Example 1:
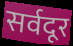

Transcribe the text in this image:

सर्वदूर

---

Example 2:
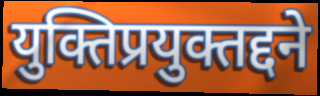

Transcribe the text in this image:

युक्तिप्रयुक्तद्दने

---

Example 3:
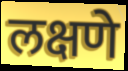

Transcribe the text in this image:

लक्षणे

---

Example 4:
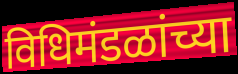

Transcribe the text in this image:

विधिमंडळांच्या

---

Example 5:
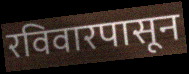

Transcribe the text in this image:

रविवारपासून